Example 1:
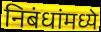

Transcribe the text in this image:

निबंधांमध्ये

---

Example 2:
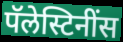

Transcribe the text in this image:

पॅलेस्टिनींस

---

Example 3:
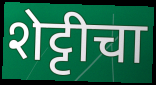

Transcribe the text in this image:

शेट्टीचा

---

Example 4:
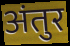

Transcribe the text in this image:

अंतुर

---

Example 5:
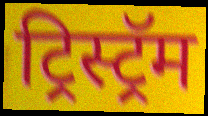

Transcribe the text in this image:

ट्रिस्ट्रॅम